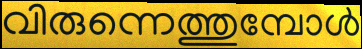
വിരുന്നെത്തുമ്പോൾ